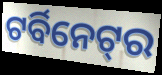
ଟର୍ବିନେଟ୍‌ର